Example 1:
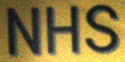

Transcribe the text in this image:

NHS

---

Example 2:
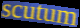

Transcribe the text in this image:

scutum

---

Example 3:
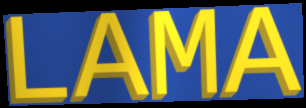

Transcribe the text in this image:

LAMA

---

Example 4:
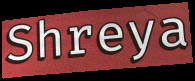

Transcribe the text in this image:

Shreya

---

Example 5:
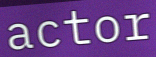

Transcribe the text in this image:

actor